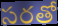
సరతో